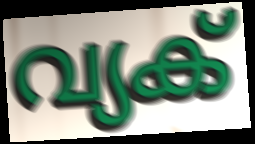
വ്യക്